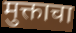
मुक्ताचा